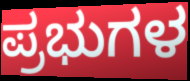
ಪ್ರಭುಗಳ